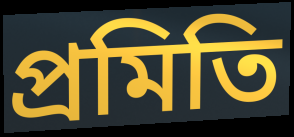
প্রমিতি